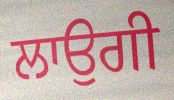
ਲਾਉਗੀ